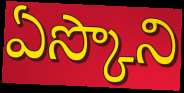
ఏస్కొని